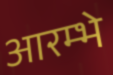
आरम्भे